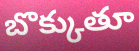
బొక్కుతూ